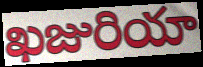
ఖజురియా